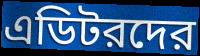
এডিটরদের